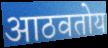
आठवतोय